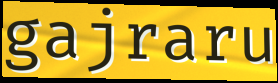
gajraru